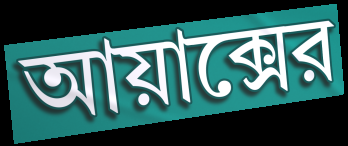
আয়াক্সের